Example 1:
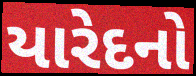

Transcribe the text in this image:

યારેદનો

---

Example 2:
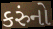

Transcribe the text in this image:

કરુંનો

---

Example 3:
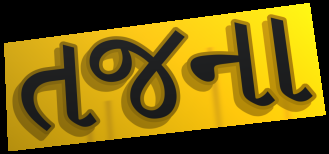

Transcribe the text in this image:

તજના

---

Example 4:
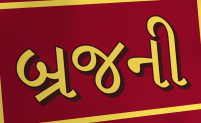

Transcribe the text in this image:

બ્રજની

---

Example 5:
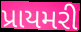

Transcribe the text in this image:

પ્રાયમરી